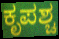
ಕೃಪಶ್ಚ